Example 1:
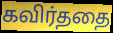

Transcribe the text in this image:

கவிர்ததை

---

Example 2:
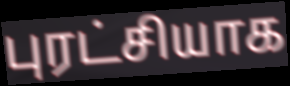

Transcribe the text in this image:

புரட்சியாக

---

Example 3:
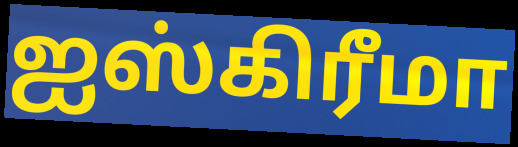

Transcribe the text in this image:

ஐஸ்கிரீமா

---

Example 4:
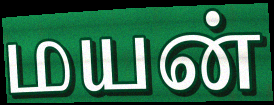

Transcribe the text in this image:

மயன்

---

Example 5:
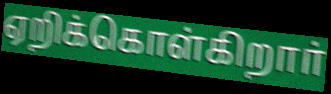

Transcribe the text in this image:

ஏறிக்கொள்கிறார்